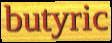
butyric